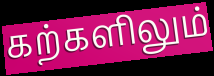
கற்களிலும்